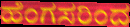
ಹೆಂಗಸರಿಂದ